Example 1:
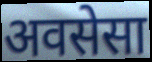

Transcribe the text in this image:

अवसेसा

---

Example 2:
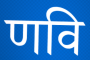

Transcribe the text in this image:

णवि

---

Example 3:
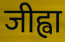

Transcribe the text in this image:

जीह्वा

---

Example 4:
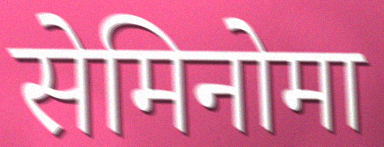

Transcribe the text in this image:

सेमिनोमा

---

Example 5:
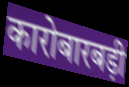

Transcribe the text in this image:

कारोबारबड़ी